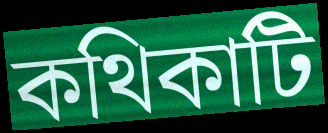
কথিকাটি